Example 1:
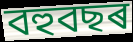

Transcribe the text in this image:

বহুবছৰ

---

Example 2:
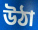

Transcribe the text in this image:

উঠা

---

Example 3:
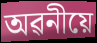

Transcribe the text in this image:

অৱনীয়ে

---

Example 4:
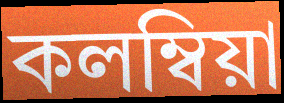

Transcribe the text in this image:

কলম্বিয়া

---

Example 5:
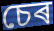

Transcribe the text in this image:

চেৰ